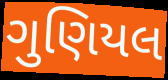
ગુણિયલ